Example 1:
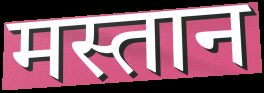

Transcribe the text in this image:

मस्तान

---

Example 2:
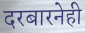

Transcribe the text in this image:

दरबारनेही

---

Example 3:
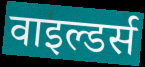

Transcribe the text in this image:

वाइल्डर्स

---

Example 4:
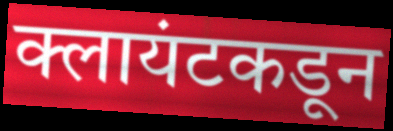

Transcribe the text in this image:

क्लायंटकडून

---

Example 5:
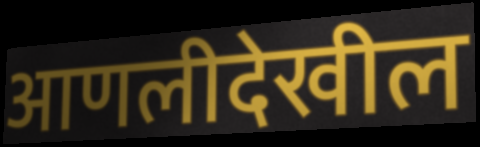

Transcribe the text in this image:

आणलीदेखील